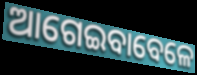
ଆଗେଇବାବେଳେ